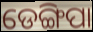
ଡେଙ୍ଗିପା